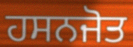
ਹਸਨਜੋਤ